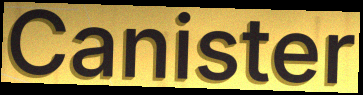
Canister